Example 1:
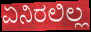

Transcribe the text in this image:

ಏನಿರಲಿಲ್ಲ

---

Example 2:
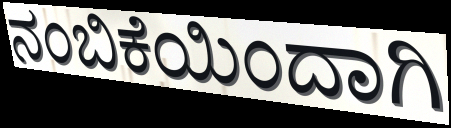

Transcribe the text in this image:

ನಂಬಿಕೆಯಿಂದಾಗಿ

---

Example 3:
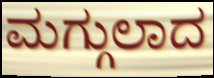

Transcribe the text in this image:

ಮಗ್ಗುಲಾದ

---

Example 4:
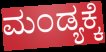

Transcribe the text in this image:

ಮಂಡ್ಯಕ್ಕೆ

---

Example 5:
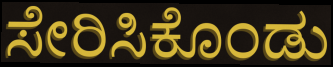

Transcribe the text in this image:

ಸೇರಿಸಿಕೊಂಡು